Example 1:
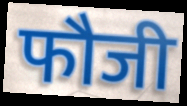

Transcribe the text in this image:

फौजी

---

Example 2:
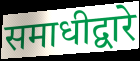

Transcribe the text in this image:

समाधीद्वारे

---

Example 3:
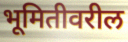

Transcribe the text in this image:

भूमितीवरील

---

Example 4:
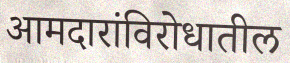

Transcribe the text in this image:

आमदारांविरोधातील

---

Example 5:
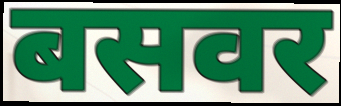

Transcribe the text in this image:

बसवर